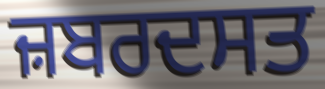
ਜ਼ਬਰਦਸਤ